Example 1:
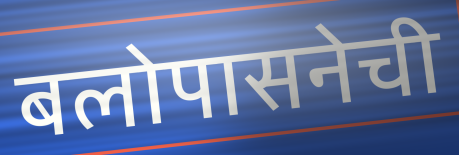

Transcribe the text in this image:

बलोपासनेची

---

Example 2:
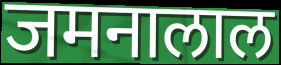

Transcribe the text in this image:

जमनालाल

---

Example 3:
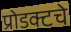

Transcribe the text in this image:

प्रोडक्टचे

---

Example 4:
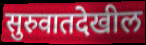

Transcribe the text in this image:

सुरुवातदेखील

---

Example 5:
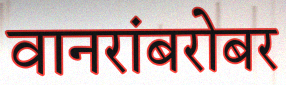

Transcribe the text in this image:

वानरांबरोबर